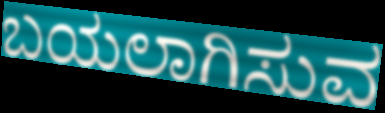
ಬಯಲಾಗಿಸುವ